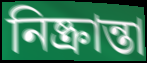
নিষ্ক্রান্তা